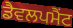
ਡੈਵਲਪਮੈਂਟ